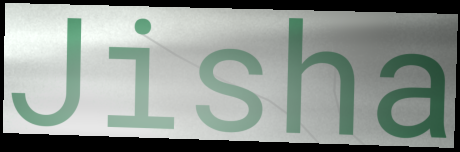
Jisha